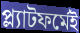
প্ল্যাটফর্মেই